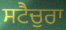
ਸਟੈਚੁਰਾ